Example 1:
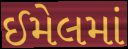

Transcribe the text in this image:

ઈમેલમાં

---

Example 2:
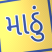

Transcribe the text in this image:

માઠું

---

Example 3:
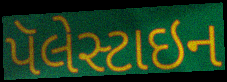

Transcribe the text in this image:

પૅલેસ્ટાઇન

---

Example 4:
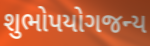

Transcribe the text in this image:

શુભોપયોગજન્ય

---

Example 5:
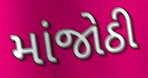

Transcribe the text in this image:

માંજોઠી